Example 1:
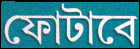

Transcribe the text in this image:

ফোটাবে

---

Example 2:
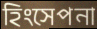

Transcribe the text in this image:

হিংসেপনা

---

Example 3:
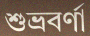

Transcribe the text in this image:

শুভ্রবর্ণা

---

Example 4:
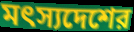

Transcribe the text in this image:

মৎস্যদেশের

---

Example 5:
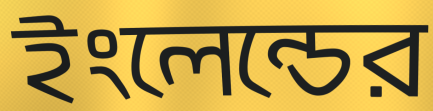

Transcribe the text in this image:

ইংলেন্ডের